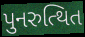
પુનરુત્થિત